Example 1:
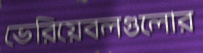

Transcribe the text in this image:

ভেরিয়েবলগুলোর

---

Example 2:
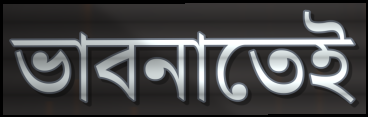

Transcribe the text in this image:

ভাবনাতেই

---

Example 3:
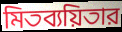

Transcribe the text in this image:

মিতব্যয়িতার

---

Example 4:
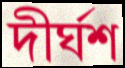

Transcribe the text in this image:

দীর্ঘশ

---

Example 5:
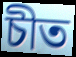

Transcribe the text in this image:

চীত